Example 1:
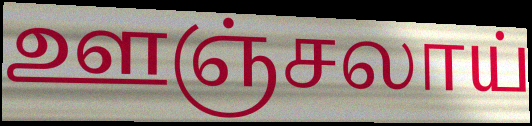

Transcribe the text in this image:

ஊஞ்சலாய்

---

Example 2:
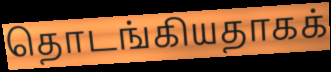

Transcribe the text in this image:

தொடங்கியதாகக்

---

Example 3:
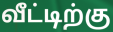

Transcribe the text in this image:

வீட்டிற்கு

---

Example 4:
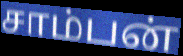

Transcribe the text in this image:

சாம்பன்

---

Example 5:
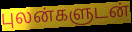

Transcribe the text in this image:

புலன்களுடன்